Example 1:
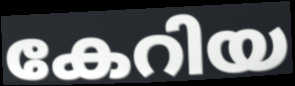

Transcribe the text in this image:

കേറിയ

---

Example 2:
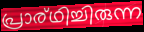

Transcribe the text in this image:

പ്രാര്ഥിച്ചിരുന്ന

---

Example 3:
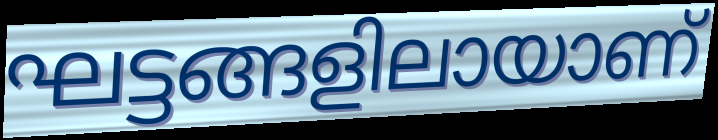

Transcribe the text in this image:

ഘട്ടങ്ങളിലായാണ്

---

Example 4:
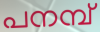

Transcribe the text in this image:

പനമ്പ്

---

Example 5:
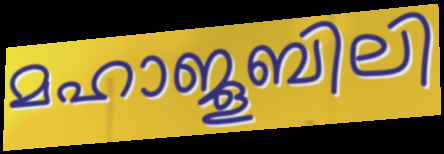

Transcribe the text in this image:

മഹാജൂബിലി